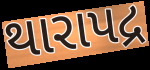
થારાપદ્ર